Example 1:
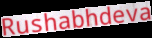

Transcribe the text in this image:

Rushabhdeva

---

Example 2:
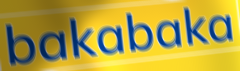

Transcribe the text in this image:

bakabaka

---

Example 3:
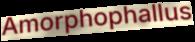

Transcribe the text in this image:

Amorphophallus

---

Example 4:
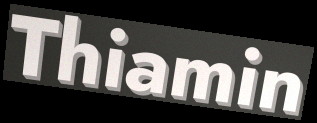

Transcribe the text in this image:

Thiamin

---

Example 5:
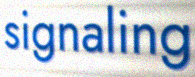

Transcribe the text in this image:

signaling